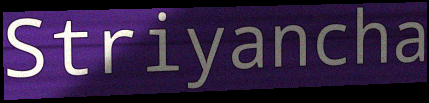
Striyancha